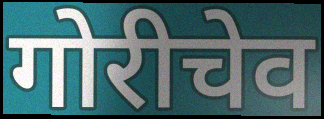
गोरीचेव